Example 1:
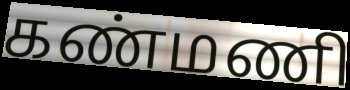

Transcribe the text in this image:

கண்மணி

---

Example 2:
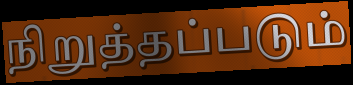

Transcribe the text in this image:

நிறுத்தப்படும்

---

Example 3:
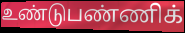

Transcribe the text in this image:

உண்டுபண்ணிக்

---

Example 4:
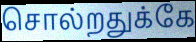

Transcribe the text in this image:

சொல்றதுக்கே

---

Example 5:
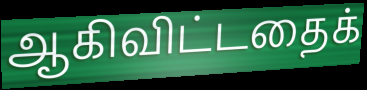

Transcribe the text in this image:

ஆகிவிட்டதைக்